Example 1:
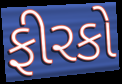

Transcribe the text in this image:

ફીરકો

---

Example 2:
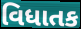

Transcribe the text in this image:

વિધાતક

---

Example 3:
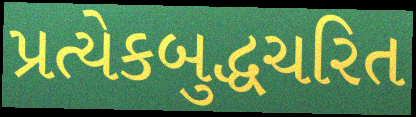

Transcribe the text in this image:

પ્રત્યેકબુદ્ધચરિત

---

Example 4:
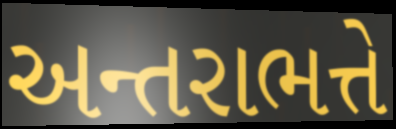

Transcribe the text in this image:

અન્તરાભત્તે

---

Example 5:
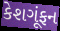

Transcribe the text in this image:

કેશગૂંફન